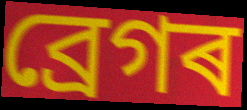
ব্ৰেগৰ